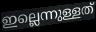
ഇല്ലെന്നുള്ളത്